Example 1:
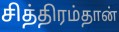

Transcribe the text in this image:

சித்திரம்தான்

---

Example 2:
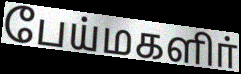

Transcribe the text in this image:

பேய்மகளிர்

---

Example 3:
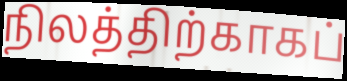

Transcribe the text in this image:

நிலத்திற்காகப்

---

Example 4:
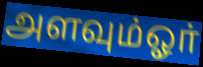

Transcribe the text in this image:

அளவும்ஓர்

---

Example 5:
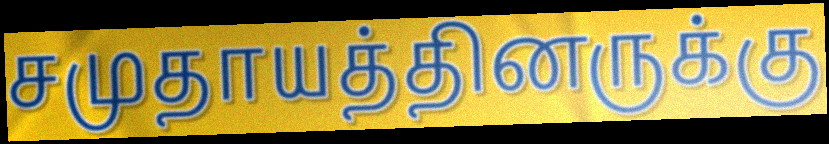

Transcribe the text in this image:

சமுதாயத்தினருக்கு